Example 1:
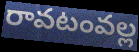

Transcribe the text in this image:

రావటంవల్ల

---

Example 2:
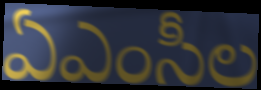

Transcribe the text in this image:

ఏఎంసీల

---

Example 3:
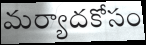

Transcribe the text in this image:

మర్యాదకోసం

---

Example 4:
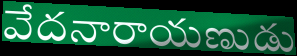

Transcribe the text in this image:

వేదనారాయణుడు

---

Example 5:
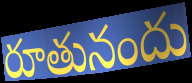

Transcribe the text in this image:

రూతునందు